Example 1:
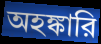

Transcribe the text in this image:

অহঙ্কারি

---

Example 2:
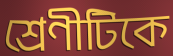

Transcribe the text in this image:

শ্রেণীটিকে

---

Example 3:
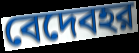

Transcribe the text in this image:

বেদেবহর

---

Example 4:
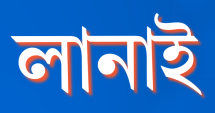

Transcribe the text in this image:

লানাই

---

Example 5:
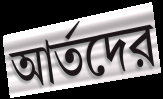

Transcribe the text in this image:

আর্তদের